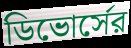
ডিভোর্সের